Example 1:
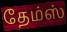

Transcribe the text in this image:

தேம்ஸ்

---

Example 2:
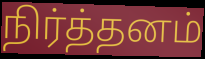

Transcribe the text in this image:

நிர்த்தனம்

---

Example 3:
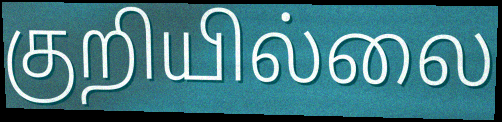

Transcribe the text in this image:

குறியில்லை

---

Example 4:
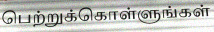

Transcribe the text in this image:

பெற்றுக்கொள்ளுங்கள்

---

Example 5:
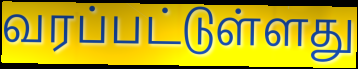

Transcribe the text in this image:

வரப்பட்டுள்ளது